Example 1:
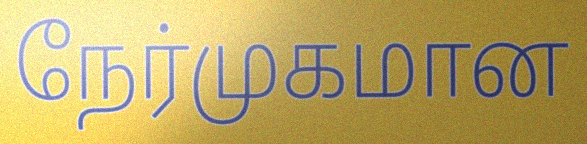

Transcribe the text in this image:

நேர்முகமான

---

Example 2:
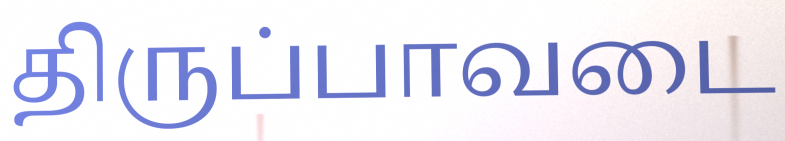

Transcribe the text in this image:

திருப்பாவடை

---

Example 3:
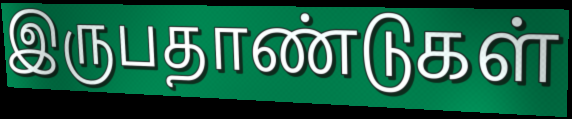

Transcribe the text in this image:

இருபதாண்டுகள்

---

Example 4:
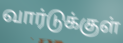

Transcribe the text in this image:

வார்டுக்குள்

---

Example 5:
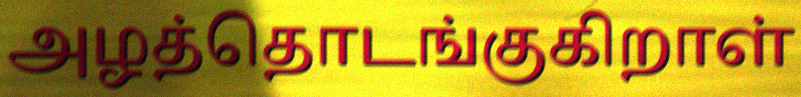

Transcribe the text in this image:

அழத்தொடங்குகிறாள்